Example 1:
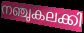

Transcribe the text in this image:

നഞ്ചുകലക്കി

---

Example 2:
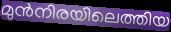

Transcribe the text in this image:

മുൻനിരയിലെത്തിയ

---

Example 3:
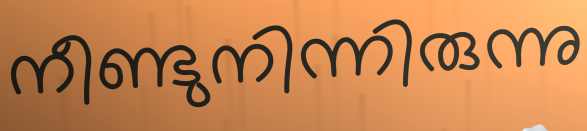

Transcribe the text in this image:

നീണ്ടുനിന്നിരുന്നു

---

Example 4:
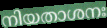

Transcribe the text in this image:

നിയതാശനഃ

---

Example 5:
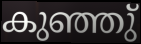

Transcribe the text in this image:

കുഞ്ഞു്